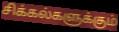
சிக்கல்களுக்கும்